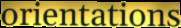
orientations